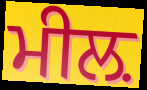
ਮੀਲ਼